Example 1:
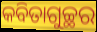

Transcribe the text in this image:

କବିତାଗୁଚ୍ଛର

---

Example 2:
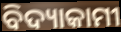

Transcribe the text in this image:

ବିଦ୍ୟାକାମୀ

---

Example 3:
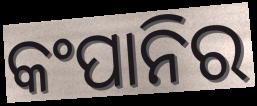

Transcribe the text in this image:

କଂପାନିର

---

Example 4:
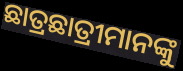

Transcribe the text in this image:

ଛାତ୍ରଛାତ୍ରୀମାନଙ୍କୁ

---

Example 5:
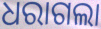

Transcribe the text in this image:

ଧରାଗଲା